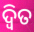
ଦ୍ୱିତ